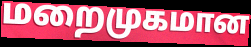
மறைமுகமான